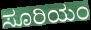
ಸೂರಿಯಂ